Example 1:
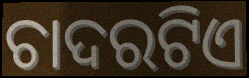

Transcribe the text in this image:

ଚାଦରଟିଏ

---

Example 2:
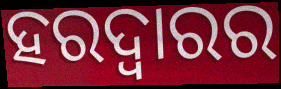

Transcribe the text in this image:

ହରଦ୍ୱାରର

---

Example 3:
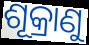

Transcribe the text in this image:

ଶୂକ୍ରାଣୁ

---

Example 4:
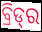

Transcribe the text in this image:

ବ୍ରିଡ୍‌ର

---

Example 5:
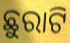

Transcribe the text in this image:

ଛୁରାଟି